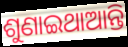
ଶୁଣାଇଥାଆନ୍ତି